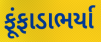
ફૂંફાડાભર્યા